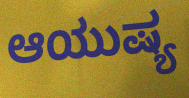
ಆಯುಷ್ಯ